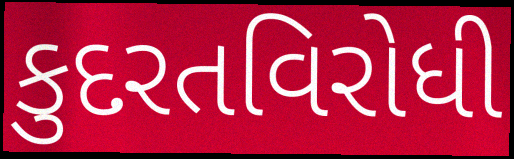
કુદરતવિરોધી